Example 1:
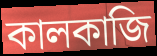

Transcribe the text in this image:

কালকাজি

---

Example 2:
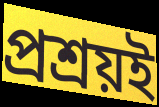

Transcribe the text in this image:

প্রশ্রয়ই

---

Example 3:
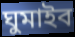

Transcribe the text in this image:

ঘুমাইব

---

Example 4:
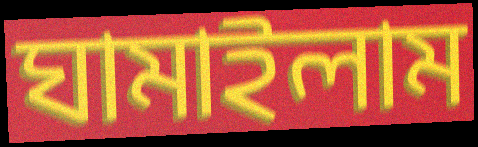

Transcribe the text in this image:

ঘামাইলাম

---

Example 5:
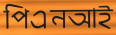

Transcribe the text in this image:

পিএনআই